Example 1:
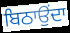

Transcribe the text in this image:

ਬਿਠਾਉਂਦਾ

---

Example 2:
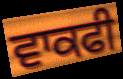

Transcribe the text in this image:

ਵਾਕਫੀ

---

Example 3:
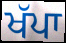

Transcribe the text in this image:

ਖੱਪਾ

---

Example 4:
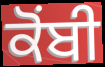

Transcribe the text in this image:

ਕੋਂਬੀ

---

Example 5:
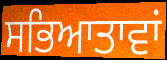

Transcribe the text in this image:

ਸਭਿਆਤਾਵਾਂ